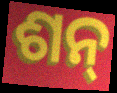
ଶନ୍